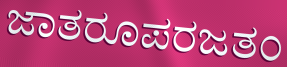
ಜಾತರೂಪರಜತಂ